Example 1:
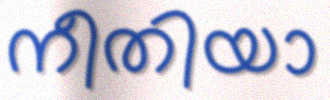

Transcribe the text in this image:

നീതിയാ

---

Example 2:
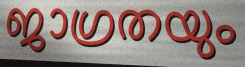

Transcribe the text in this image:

ജാഗ്രതയും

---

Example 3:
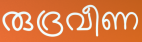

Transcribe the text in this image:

രുദ്രവീണ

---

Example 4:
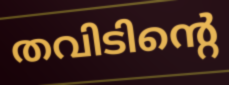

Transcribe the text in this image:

തവിടിന്റെ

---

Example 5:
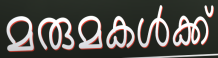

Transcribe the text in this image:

മരുമകൾക്ക്